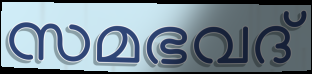
സമഭവദ്